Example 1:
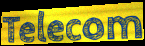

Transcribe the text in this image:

Telecom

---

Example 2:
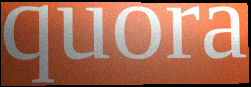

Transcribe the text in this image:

quora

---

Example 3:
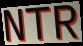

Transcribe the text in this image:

NTR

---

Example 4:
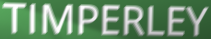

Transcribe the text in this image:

TIMPERLEY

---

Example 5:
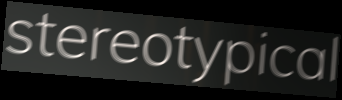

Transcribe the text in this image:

stereotypical